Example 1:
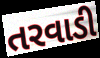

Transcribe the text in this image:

તરવાડી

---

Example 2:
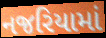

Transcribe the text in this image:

નજરિયામાં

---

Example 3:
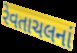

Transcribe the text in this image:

રેવતાચલનાં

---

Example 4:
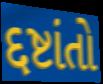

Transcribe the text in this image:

દ્દષ્ટાંતો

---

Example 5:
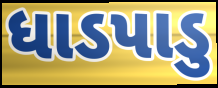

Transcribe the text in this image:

ધાડપાડુ